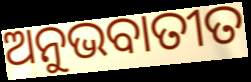
ଅନୁଭବାତୀତ